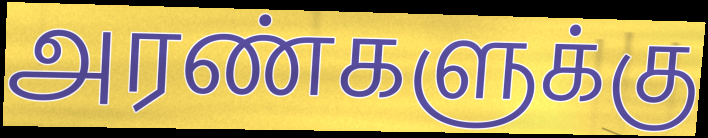
அரண்களுக்கு